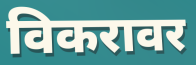
विकरावर